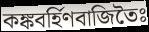
কঙ্কবর্হিণবাজিতৈঃ